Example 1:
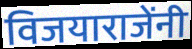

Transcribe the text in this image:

विजयाराजेंनी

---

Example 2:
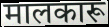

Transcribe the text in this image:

मालकारू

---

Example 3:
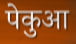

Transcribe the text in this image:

पेकुआ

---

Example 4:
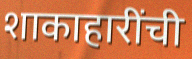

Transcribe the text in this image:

शाकाहारींची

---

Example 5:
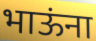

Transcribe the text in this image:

भाऊंना